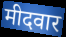
मीदवार